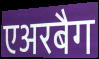
एअरबैग